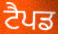
ਟੈਪਡ